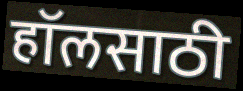
हॉलसाठी